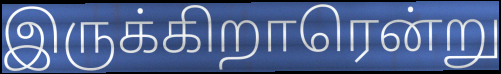
இருக்கிறாரென்று